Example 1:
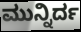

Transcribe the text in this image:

ಮುನ್ನಿರ್ದ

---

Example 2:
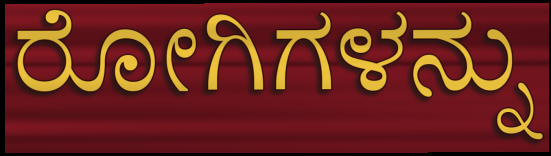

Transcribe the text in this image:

ರೋಗಿಗಳನ್ನು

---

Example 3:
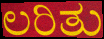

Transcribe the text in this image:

ಲರಿತು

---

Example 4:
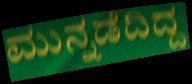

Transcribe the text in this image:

ಮುನ್ನಡೆದಿದ್ದ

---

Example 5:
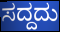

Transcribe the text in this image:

ಸದ್ದದು